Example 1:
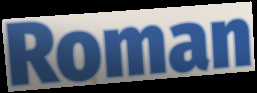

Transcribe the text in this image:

Roman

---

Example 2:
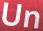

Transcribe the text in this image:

Un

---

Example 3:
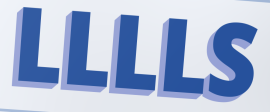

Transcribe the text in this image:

LLLLS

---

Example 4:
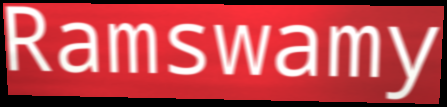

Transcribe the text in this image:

Ramswamy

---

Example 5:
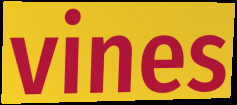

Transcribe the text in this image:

vines